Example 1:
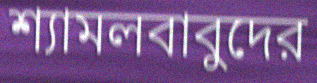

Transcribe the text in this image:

শ্যামলবাবুদের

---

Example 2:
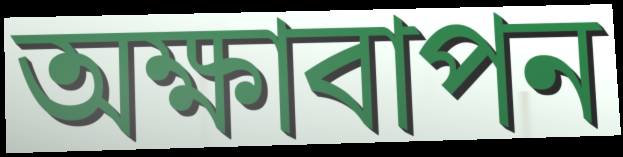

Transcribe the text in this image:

অক্ষাবাপন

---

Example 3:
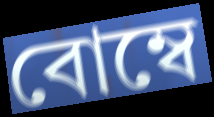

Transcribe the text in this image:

বোম্বে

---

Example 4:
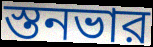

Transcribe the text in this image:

স্তনভার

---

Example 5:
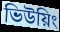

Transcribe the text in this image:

ভিউয়িং